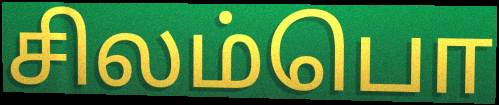
சிலம்பொ